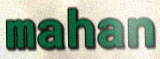
mahan